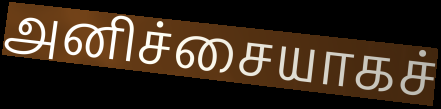
அனிச்சையாகச்